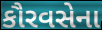
કૌરવસેના